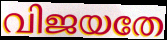
വിജയതേ